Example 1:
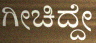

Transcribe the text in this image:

ಗೀಚಿದ್ದೇ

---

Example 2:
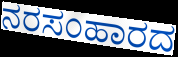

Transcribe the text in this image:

ನರಸಂಹಾರದ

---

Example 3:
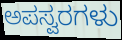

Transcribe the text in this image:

ಅಪಸ್ವರಗಳು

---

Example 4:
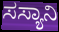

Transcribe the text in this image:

ಸಸ್ಯಾನಿ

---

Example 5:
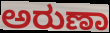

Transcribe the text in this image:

ಅರುಣಾ